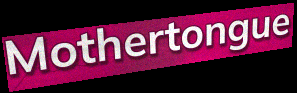
Mothertongue